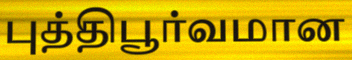
புத்திபூர்வமான